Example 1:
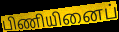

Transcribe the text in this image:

பிணியினைப்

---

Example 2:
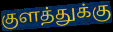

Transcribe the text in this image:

குளத்துக்கு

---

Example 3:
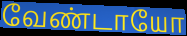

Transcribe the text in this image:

வேண்டாயோ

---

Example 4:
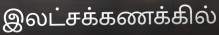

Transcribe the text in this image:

இலட்சக்கணக்கில்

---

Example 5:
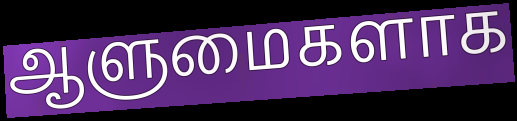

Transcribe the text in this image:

ஆளுமைகளாக